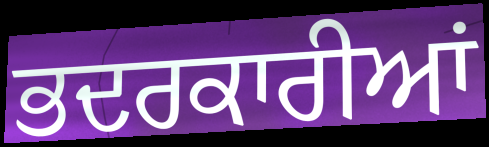
ਭਦਰਕਾਰੀਆਂ